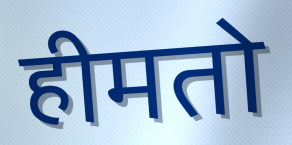
हीमतो